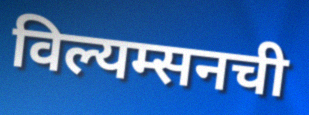
विल्यम्सनची